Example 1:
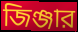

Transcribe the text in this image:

জিঞ্জার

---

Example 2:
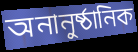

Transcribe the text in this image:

অনানুষ্ঠানিক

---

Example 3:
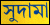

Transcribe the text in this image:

সুদামা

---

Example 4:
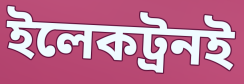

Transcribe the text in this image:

ইলেকট্রনই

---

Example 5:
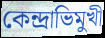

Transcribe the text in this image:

কেন্দ্রাভিমুখী